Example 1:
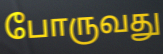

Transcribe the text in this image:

போருவது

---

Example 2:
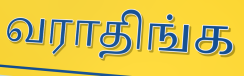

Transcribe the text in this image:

வராதிங்க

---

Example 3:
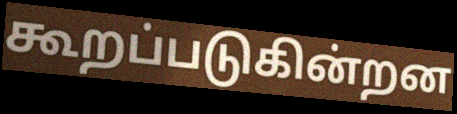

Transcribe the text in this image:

கூறப்படுகின்றன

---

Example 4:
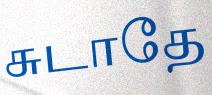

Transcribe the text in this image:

சுடாதே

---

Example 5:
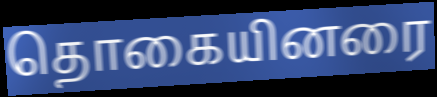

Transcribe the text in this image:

தொகையினரை